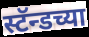
स्टॅन्डच्या